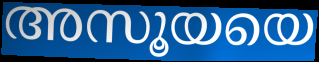
അസൂയയെ